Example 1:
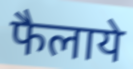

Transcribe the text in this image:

फैलाये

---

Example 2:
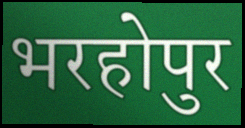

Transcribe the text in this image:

भरहोपुर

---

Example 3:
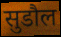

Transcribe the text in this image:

सुडौल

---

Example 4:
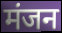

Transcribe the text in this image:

मंजन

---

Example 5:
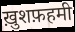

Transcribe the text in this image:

ख़ुशफ़हमी